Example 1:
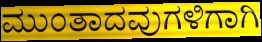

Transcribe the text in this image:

ಮುಂತಾದವುಗಳಿಗಾಗಿ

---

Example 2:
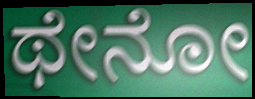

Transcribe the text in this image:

ಥೇನೋ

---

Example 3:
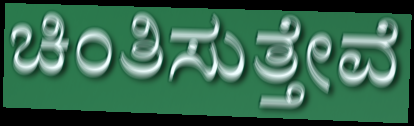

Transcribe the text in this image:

ಚಿಂತಿಸುತ್ತೇವೆ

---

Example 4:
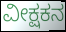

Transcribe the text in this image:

ವೀಕ್ಷಕನ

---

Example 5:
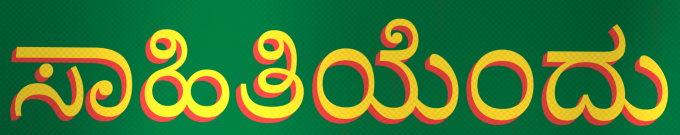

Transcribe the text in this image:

ಸಾಹಿತಿಯೆಂದು